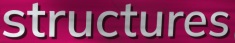
structures